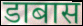
डाबास